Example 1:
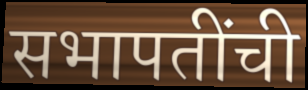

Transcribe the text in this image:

सभापतींची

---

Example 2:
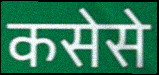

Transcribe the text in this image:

कसेसे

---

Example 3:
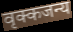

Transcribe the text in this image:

वृक्कजन्य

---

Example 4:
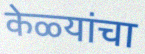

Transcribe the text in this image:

केळ्यांचा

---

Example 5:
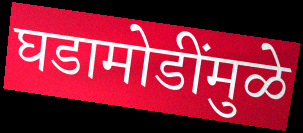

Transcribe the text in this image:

घडामोडींमुळे